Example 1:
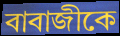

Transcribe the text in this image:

বাবাজীকে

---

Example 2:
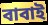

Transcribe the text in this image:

বাবাই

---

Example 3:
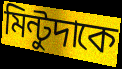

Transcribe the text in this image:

মিন্টুদাকে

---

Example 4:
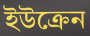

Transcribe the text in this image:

ইউক্রেন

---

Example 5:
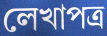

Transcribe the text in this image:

লেখাপত্র